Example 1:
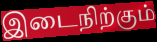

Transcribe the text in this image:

இடைநிற்கும்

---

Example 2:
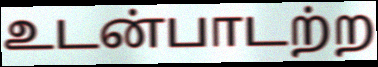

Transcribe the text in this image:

உடன்பாடற்ற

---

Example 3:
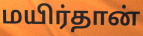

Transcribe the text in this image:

மயிர்தான்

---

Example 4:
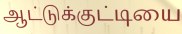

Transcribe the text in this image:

ஆட்டுக்குட்டியை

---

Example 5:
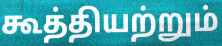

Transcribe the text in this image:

கூத்தியற்றும்